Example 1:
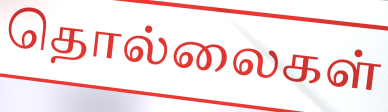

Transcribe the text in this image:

தொல்லைகள்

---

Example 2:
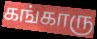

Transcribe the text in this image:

கங்காரு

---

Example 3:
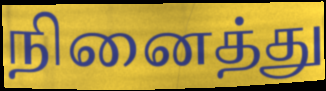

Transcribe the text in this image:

நினைத்து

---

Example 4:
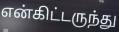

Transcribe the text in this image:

என்கிட்டருந்து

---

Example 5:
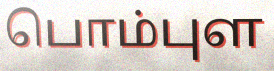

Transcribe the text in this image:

பொம்புள